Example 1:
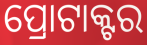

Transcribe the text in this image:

ପ୍ରୋଟାକ୍ଟର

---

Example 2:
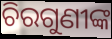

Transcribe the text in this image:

ଚିରଗୁଣୀଙ୍କ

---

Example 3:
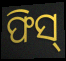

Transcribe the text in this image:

ଫିସ୍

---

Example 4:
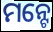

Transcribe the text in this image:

ମନ୍ଟେ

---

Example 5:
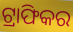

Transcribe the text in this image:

ଟ୍ରାଫିକର